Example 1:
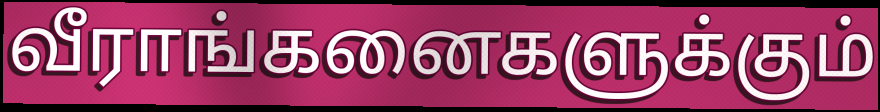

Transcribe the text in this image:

வீராங்கனைகளுக்கும்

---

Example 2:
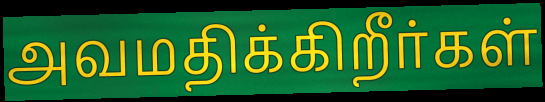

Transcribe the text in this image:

அவமதிக்கிறீர்கள்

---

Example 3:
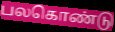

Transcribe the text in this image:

பலகொண்டு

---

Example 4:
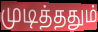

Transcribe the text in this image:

முடித்ததும்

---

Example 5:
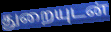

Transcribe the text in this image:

துறையுடன்